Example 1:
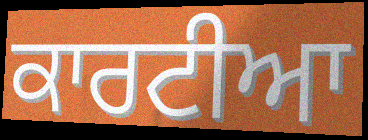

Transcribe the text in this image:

ਕਾਰਟੀਆ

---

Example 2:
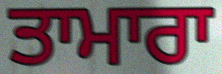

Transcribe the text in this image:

ਤਾਮਾਰਾ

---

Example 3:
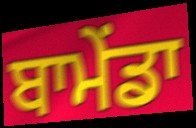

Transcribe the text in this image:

ਬਾਮੇਂਡਾ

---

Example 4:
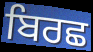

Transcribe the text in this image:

ਬਿਰਛ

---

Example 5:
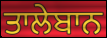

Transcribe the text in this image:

ਤਾਲੇਬਾਨ